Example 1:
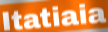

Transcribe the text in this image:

Itatiaia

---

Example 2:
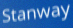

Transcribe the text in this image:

Stanway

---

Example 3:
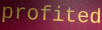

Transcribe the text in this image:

profited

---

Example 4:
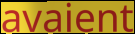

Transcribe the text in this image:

avaient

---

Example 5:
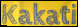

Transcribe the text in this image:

Kakati